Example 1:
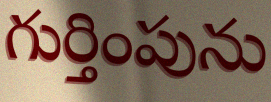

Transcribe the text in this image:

గుర్తింపును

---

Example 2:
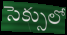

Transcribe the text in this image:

సెక్సులో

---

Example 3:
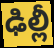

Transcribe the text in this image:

ఢిల్లీ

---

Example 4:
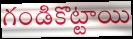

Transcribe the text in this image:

గండికొట్టాయి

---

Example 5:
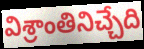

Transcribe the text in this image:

విశ్రాంతినిచ్చేది